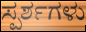
ಸ್ಪರ್ಶಗಳು